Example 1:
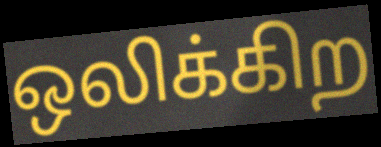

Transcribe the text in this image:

ஒலிக்கிற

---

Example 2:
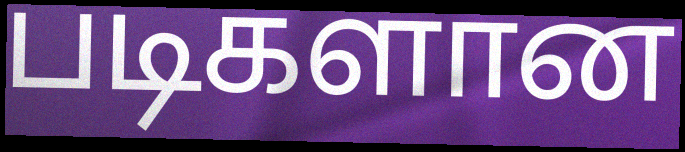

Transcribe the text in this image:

படிகளான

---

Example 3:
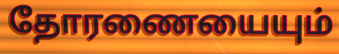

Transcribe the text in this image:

தோரணையையும்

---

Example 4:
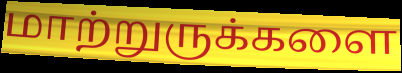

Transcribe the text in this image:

மாற்றுருக்களை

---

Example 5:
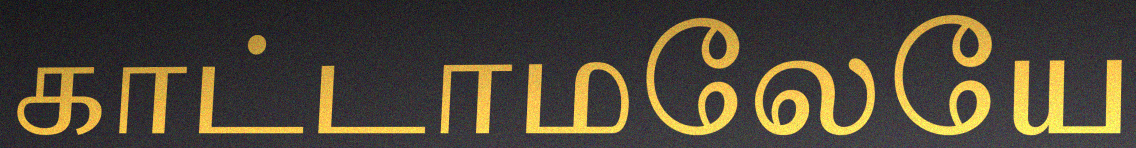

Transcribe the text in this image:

காட்டாமலேயே